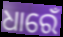
ଧାରେଁ